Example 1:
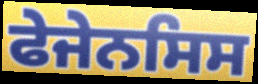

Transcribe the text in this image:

ਫੇਜੇਨਸਿਸ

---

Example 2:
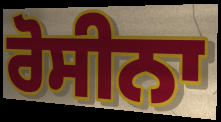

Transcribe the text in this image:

ਰੋਸੀਨਾ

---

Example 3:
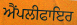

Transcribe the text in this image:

ਐਂਪਲੀਫਾਇਰ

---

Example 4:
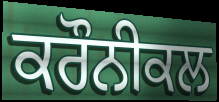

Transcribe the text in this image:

ਕਰੌਨੀਕਲ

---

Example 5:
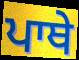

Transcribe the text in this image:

ਪਾਥੇ